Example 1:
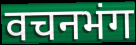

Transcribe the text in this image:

वचनभंग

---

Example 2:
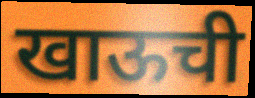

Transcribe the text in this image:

खाऊची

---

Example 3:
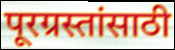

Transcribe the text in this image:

पूरग्रस्तांसाठी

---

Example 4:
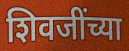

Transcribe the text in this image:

शिवजींच्या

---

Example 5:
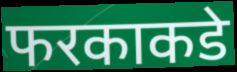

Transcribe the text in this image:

फरकाकडे